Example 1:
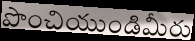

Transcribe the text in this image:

పొంచియుండిమీరు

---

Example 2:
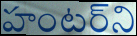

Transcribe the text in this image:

హంటర్‌ని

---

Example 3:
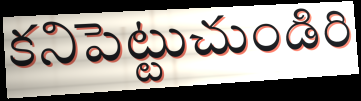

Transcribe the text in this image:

కనిపెట్టుచుండిరి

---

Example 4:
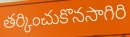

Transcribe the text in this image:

తర్కించుకొనసాగిరి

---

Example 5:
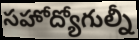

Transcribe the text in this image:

సహోద్యోగుల్నీ